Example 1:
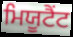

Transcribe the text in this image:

ਮਿਯੂਟੈਂਟ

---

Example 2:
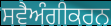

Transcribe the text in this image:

ਸਵੈਅੰਗੀਕਰਨ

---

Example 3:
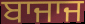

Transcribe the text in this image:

ਬਾਜਾਜ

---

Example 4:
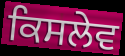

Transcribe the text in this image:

ਕਿਸਲੇਵ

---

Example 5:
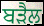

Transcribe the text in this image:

ਬੜੈਲ